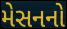
મેસનનો